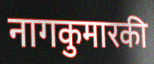
नागकुमारकी